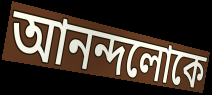
আনন্দলোকে